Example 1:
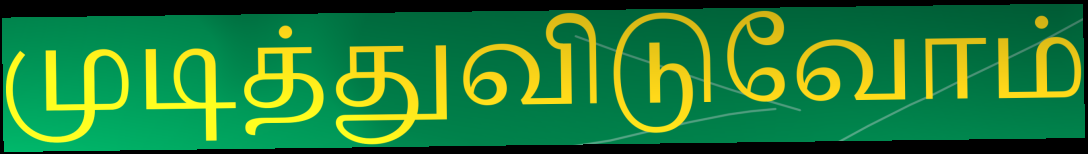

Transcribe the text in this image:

முடித்துவிடுவோம்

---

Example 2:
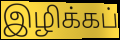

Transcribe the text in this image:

இழிக்கப்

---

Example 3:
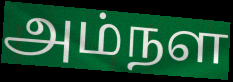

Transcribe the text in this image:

அம்நள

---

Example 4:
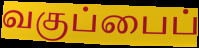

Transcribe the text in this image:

வகுப்பைப்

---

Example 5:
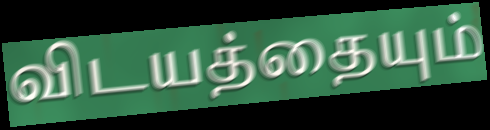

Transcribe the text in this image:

விடயத்தையும்